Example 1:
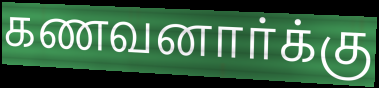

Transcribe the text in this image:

கணவனார்க்கு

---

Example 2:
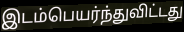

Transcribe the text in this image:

இடம்பெயர்ந்துவிட்டது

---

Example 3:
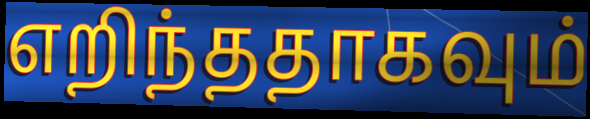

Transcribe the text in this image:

எறிந்ததாகவும்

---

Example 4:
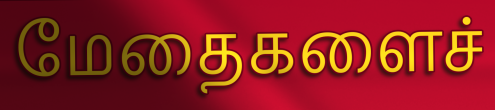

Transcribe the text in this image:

மேதைகளைச்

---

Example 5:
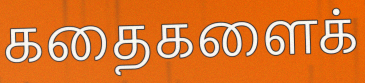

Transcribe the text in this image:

கதைகளைக்